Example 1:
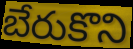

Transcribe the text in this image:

బేరుకొని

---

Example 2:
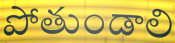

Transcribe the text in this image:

పోతుండాలి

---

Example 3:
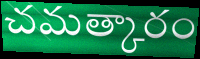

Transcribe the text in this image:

చమత్కారం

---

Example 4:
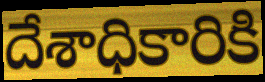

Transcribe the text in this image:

దేశాధికారికి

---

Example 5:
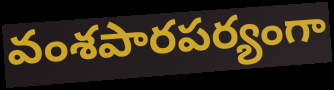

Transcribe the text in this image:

వంశపారపర్యంగా